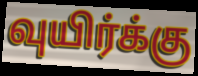
வுயிர்க்கு